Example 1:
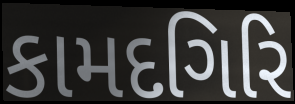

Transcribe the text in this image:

કામદગિરિ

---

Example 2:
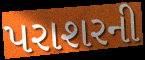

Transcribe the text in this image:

પરાશરની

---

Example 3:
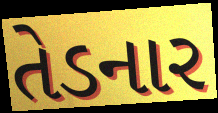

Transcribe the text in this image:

તેડનાર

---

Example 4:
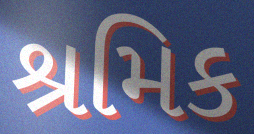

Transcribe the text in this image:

શ્રમિક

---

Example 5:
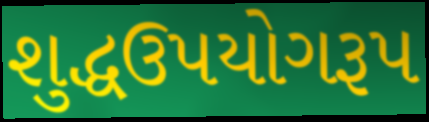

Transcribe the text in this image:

શુદ્ધઉપયોગરૂપ